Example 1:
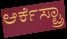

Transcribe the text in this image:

ಆರ್ಕೆಸ್ಟ್ರಾ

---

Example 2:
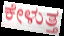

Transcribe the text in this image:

ಕೇಳುತ್ತ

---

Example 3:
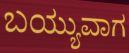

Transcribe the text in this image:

ಬಯ್ಯುವಾಗ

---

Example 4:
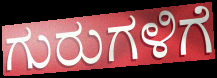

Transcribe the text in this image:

ಗುರುಗಳಿಗೆ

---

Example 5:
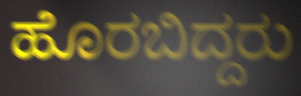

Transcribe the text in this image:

ಹೊರಬಿದ್ದರು